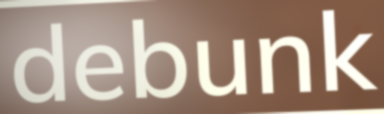
debunk